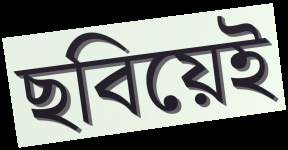
ছবিয়েই